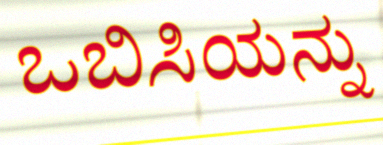
ಒಬಿಸಿಯನ್ನು